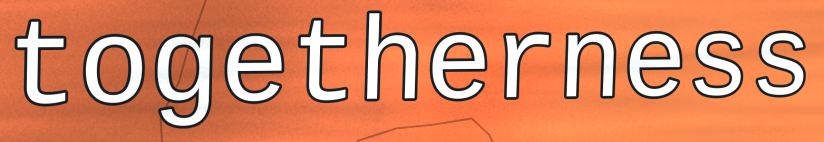
togetherness